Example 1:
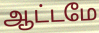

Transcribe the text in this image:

ஆட்டமே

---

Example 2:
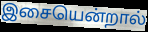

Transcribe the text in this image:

இசையென்றால்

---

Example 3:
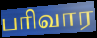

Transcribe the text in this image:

பரிவார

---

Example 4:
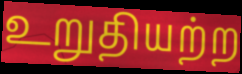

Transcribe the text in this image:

உறுதியற்ற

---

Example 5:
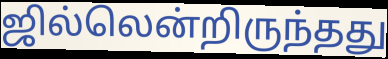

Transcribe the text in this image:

ஜில்லென்றிருந்தது